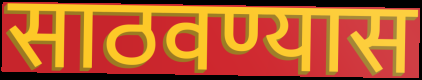
साठवण्यास